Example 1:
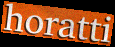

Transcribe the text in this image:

horatti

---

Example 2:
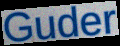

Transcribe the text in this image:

Guder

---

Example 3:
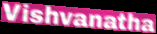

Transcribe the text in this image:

Vishvanatha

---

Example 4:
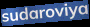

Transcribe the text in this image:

sudaroviya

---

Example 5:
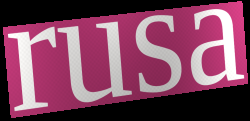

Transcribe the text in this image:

rusa